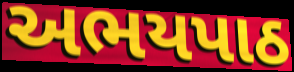
અભયપાઠ